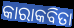
କାରାକବିତା